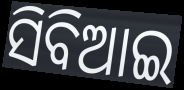
ସିବିଆଇ